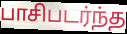
பாசிபடர்ந்த